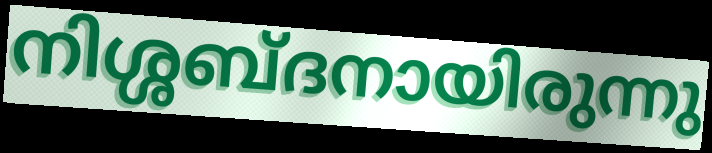
നിശ്ശബ്ദനായിരുന്നു